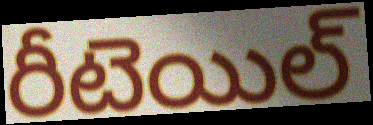
రీటెయిల్